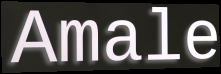
Amale